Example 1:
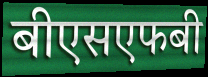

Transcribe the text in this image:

बीएसएफबी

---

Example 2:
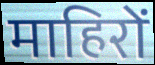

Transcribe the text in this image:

माहिरों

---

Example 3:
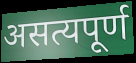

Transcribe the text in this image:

असत्यपूर्ण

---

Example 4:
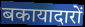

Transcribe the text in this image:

बकायादारों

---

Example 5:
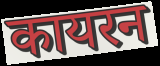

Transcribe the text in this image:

कायरन